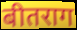
बीतराग